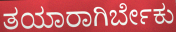
ತಯಾರಾಗಿರ್ಬೇಕು